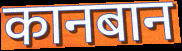
कानबान